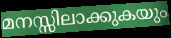
മനസ്സിലാക്കുകയും